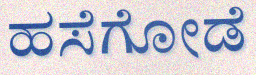
ಹಸೆಗೋಡೆ